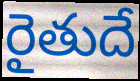
రైతుదే